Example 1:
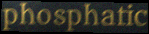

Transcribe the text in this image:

phosphatic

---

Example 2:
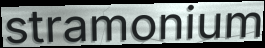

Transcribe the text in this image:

stramonium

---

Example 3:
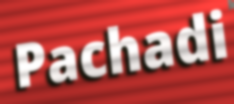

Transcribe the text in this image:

Pachadi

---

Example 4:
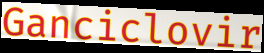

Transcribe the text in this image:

Ganciclovir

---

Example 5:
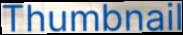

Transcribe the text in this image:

Thumbnail